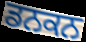
ਡਨਕਨ